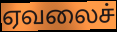
ஏவலைச்